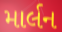
માર્લન